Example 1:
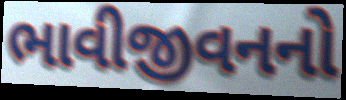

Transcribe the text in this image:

ભાવીજીવનનો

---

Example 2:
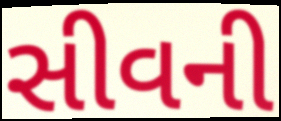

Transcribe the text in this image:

સીવની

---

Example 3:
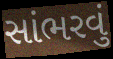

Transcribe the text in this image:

સાંભરવું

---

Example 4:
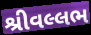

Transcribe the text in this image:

શ્રીવલ્લભ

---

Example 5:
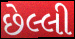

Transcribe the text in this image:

છેલ્લી